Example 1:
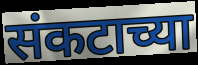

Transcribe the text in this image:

संकटाच्या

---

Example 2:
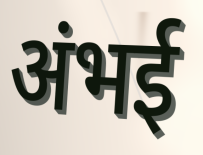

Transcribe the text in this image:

अंभई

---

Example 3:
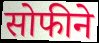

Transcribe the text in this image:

सोफीने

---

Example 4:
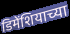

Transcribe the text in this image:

डिमेंशियाच्या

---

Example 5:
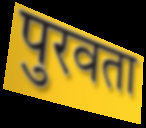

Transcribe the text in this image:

पुरवता